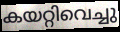
കയറ്റിവെച്ചു